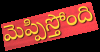
మెప్పిస్తోంది